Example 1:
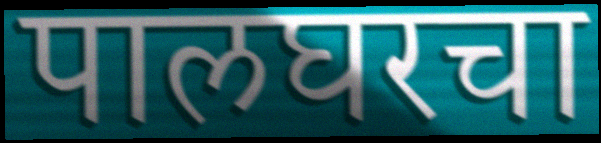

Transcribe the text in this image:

पालघरचा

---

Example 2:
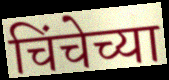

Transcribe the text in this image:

चिंचेच्या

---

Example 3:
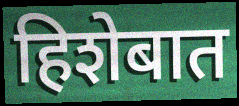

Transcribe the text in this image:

हिशेबात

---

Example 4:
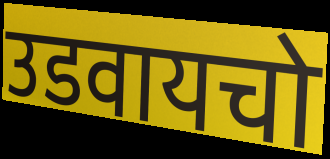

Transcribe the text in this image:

उडवायचो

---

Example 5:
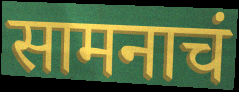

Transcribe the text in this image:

सामनाचं